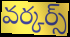
వర్కర్స్